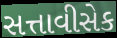
સત્તાવીસેક